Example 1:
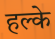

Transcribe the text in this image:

हल्‍के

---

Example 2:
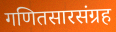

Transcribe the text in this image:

गणितसारसंग्रह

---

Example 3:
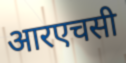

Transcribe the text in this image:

आरएचसी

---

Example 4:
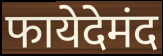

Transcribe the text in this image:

फायेदेमंद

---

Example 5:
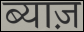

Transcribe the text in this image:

ब्याज़